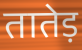
तातेड़